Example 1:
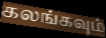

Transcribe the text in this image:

கலங்கவும்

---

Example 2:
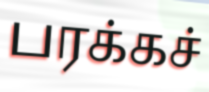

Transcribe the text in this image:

பரக்கச்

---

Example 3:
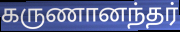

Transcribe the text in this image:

கருணானந்தர்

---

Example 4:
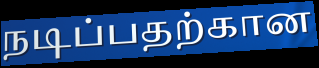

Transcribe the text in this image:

நடிப்பதற்கான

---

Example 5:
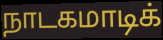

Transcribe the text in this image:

நாடகமாடிக்